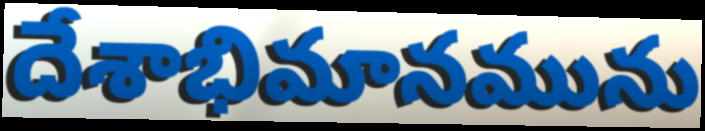
దేశాభిమానమును